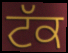
ਟੱਕ